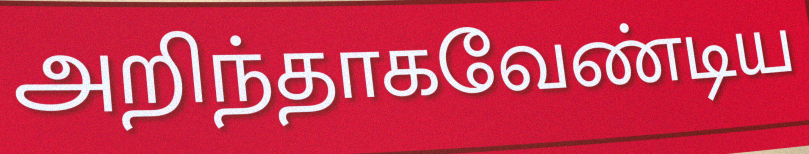
அறிந்தாகவேண்டிய